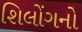
શિલોંગનો